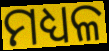
ମଧ୍ୟଳ